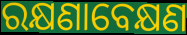
ରକ୍ଷଣାବେକ୍ଷଣ